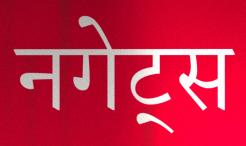
नगेट्स